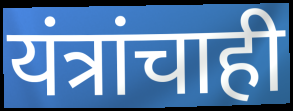
यंत्रांचाही